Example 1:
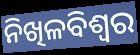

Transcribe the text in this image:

ନିଖିଳବିଶ୍ୱର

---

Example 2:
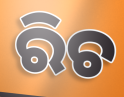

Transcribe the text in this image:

ରିଚ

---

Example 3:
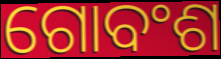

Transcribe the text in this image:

ଗୋବଂଶ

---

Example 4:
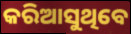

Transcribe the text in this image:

କରିଆସୁଥିବେ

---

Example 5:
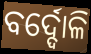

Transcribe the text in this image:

ବର୍ଦ୍ଦୋଳି